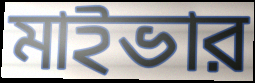
মাইভার